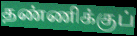
தண்ணிக்குப்